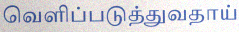
வெளிப்படுத்துவதாய்